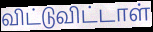
விட்டுவிட்டாள்